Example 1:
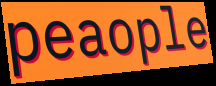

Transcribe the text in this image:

peaople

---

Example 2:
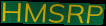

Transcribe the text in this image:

HMSRP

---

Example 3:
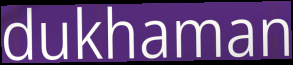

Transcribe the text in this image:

dukhaman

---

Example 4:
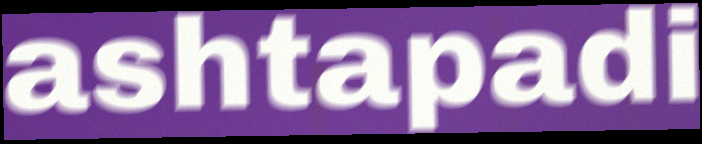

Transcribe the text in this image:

ashtapadi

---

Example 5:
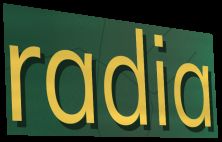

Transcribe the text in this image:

radia